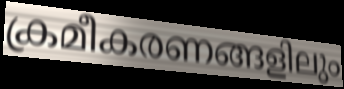
ക്രമീകരണങ്ങളിലും